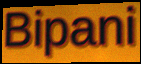
Bipani